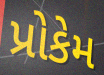
પ્રોકેમ